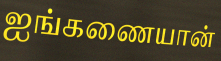
ஐங்கணையான்